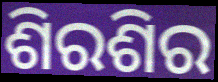
ଶିରଶିର